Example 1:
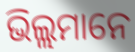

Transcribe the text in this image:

ଭିଲ୍ଲମାନେ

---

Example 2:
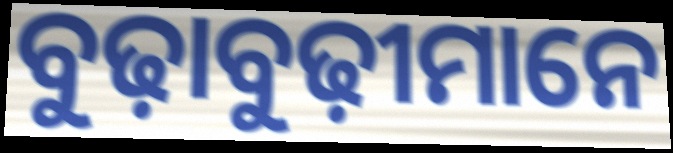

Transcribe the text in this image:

ବୁଢ଼ାବୁଢ଼ୀମାନେ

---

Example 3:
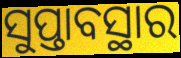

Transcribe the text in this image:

ସୁପ୍ତାବସ୍ଥାର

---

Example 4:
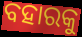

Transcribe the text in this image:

ବହାରକୁ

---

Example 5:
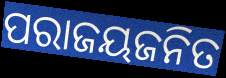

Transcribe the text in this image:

ପରାଜୟଜନିତ